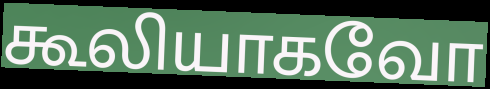
கூலியாகவோ